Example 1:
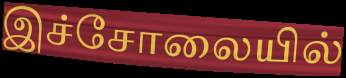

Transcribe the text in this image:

இச்சோலையில்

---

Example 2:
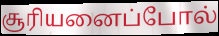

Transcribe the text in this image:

சூரியனைப்போல்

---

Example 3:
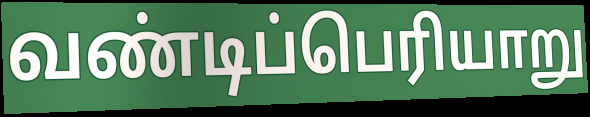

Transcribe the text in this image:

வண்டிப்பெரியாறு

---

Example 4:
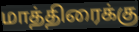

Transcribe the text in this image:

மாத்திரைக்கு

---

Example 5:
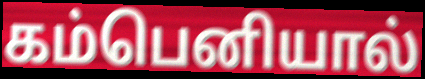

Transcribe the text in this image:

கம்பெனியால்